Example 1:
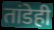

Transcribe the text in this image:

तांडेही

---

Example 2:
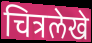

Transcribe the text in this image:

चित्रलेखे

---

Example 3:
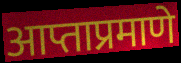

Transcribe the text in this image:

आप्ताप्रमाणे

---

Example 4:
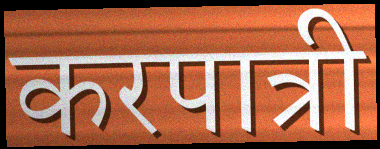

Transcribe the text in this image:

करपात्री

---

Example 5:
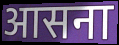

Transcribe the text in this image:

आसना